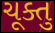
ચૂક્તુ